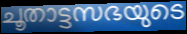
ചൂതാട്ടസഭയുടെ